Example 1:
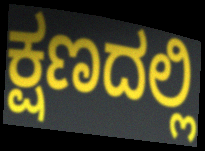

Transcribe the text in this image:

ಕ್ಷಣದಲ್ಲಿ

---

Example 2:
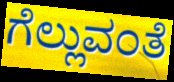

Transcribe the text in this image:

ಗೆಲ್ಲುವಂತೆ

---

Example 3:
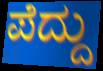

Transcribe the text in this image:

ಪೆದ್ದು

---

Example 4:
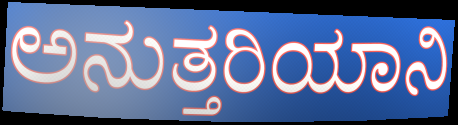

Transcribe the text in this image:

ಅನುತ್ತರಿಯಾನಿ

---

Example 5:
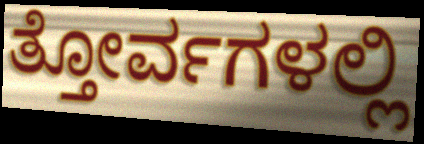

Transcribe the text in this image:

ತ್ತೋರ್ವಗಳಲ್ಲಿ